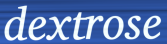
dextrose